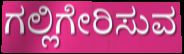
ಗಲ್ಲಿಗೇರಿಸುವ